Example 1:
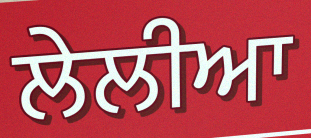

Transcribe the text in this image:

ਲੇਲੀਆ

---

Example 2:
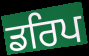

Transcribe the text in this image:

ਡਰਿਪ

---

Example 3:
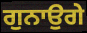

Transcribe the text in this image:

ਗੁਨਾਉਗੇ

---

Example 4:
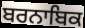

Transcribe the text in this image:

ਬਰਨਾਬਿਕ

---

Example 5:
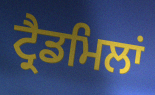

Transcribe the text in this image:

ਟ੍ਰੈਡਮਿਲਾਂ